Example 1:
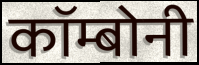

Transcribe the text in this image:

कॉम्बोनी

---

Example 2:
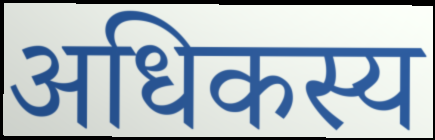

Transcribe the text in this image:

अधिकस्य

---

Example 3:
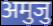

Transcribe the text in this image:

अमुजु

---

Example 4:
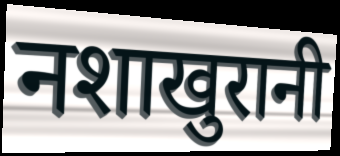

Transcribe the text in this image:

नशाखुरानी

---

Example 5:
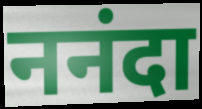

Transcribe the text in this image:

ननंदा